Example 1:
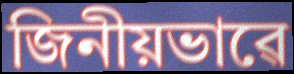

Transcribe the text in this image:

জিনীয়ভাৱে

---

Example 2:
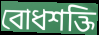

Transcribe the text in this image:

বোধশক্তি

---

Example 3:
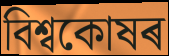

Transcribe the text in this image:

বিশ্বকোষৰ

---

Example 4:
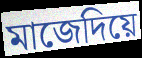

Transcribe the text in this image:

মাজেদিয়ে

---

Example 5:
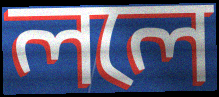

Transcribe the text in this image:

ললে